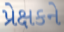
પ્રેક્ષકને